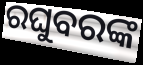
ରଘୁବରଙ୍କ